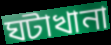
ঘটাখানা